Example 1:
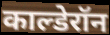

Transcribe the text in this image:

काल्डेरॉन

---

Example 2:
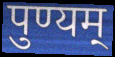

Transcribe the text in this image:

पुण्यम्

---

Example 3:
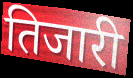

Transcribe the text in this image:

तिजारी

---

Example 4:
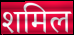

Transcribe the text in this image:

शमिल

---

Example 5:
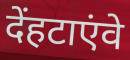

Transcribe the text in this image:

देंहटाएंवे